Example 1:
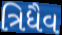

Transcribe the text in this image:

ત્રિધૈવ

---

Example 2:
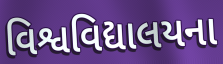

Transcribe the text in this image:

વિશ્વવિદ્યાલયના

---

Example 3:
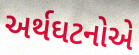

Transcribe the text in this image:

અર્થઘટનોએ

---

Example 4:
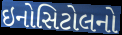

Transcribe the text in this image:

ઇનોસિટોલનો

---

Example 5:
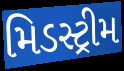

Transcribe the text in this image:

મિડસ્ટ્રીમ